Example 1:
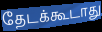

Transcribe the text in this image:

தேடக்கூடாது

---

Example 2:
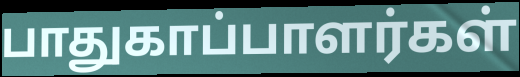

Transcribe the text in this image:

பாதுகாப்பாளர்கள்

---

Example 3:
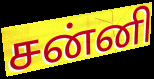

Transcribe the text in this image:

சன்னி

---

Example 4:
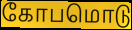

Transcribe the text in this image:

கோபமொடு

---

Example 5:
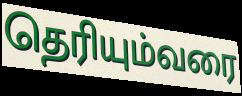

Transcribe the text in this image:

தெரியும்வரை